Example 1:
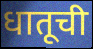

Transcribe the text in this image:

धातूची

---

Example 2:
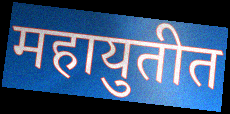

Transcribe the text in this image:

महायुतीत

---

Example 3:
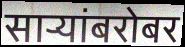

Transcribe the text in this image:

साऱ्यांबरोबर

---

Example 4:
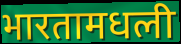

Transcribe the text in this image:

भारतामधली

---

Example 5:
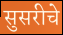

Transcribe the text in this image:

सुसरीचे